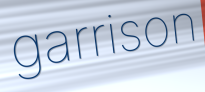
garrison